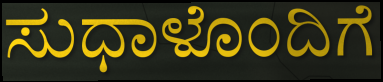
ಸುಧಾಳೊಂದಿಗೆ